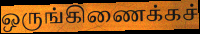
ஒருங்கிணைக்கச்